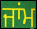
ਜਾਂਮ